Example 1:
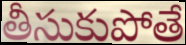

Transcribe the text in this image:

తీసుకుపోతే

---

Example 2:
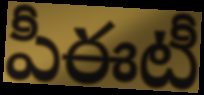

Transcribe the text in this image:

పీఈటీ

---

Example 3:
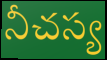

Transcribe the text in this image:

నీచస్య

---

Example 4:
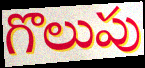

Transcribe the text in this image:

గొలుపు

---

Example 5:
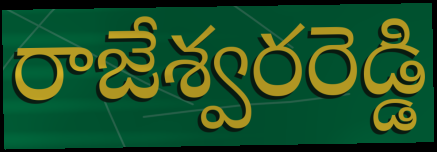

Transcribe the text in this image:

రాజేశ్వరరెడ్డి